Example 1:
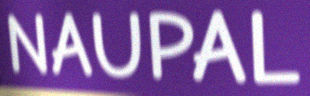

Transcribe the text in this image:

NAUPAL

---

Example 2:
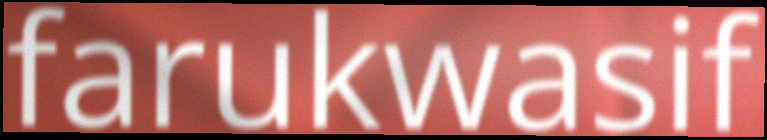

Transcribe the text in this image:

farukwasif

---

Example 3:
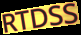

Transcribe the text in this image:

RTDSS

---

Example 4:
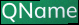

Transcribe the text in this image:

QName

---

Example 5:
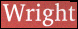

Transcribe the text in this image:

Wright